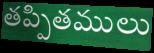
తప్పితములు